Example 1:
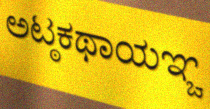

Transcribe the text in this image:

ಅಟ್ಠಕಥಾಯಞ್ಚ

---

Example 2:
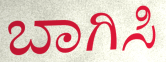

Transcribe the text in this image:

ಬಾಗಿಸಿ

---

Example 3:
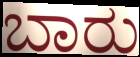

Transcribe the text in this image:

ಬಾರು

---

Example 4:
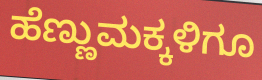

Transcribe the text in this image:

ಹೆಣ್ಣುಮಕ್ಕಳಿಗೂ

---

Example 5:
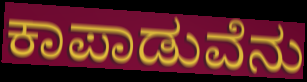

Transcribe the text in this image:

ಕಾಪಾಡುವೆನು